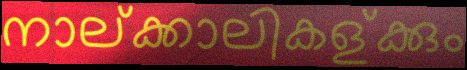
നാല്ക്കാലികള്ക്കും